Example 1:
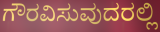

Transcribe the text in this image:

ಗೌರವಿಸುವುದರಲ್ಲಿ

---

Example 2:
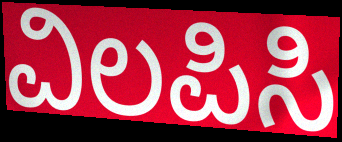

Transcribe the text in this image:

ವಿಲಪಿಸಿ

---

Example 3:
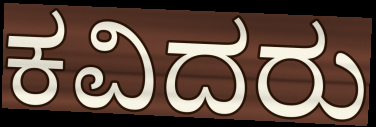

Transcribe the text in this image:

ಕವಿದರು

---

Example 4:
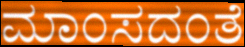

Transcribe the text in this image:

ಮಾಂಸದಂತೆ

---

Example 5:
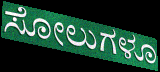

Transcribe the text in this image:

ಸೋಲುಗಳೂ